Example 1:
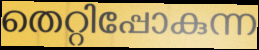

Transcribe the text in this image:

തെറ്റിപ്പോകുന്ന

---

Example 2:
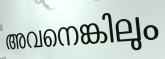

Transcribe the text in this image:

അവനെങ്കിലും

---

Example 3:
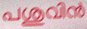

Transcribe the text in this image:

പശുവിൻ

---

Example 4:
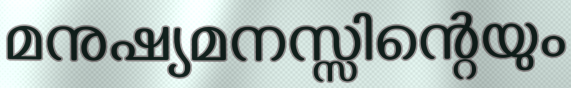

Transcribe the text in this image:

മനുഷ്യമനസ്സിന്റെയും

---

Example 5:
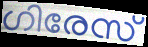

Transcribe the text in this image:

ഗിരേസ്